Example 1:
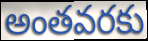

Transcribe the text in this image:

అంతవరకు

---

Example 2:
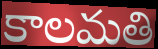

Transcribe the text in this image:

కాలమతి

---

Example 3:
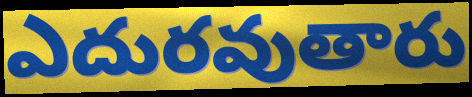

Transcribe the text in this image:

ఎదురవుతారు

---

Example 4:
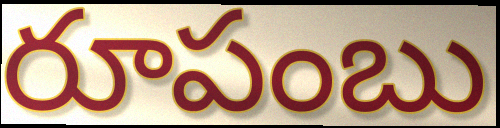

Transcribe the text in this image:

రూపంబు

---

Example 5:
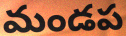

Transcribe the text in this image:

మండప